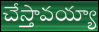
చేస్తావయ్యా